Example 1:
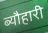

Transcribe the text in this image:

ब्यौहारी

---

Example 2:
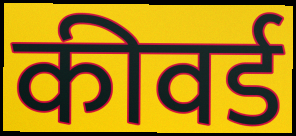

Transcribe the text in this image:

कीवर्ड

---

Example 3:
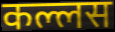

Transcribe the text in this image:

कल्लस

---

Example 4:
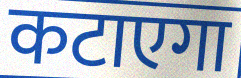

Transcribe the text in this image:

कटाएगा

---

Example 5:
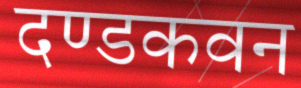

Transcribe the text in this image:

दण्डकवन